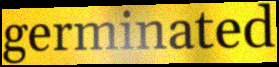
germinated